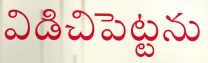
విడిచిపెట్టను